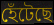
হেঁটেছে